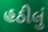
હઠીલું